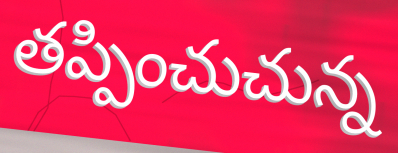
తప్పించుచున్న